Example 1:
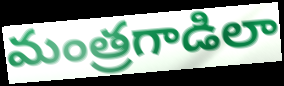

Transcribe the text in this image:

మంత్రగాడిలా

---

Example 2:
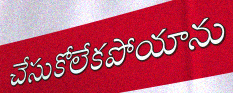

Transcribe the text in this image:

చేసుకోలేకపోయాను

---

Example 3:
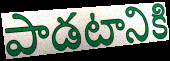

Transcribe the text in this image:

పాడటానికి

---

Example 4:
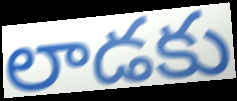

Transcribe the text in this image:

లాడకు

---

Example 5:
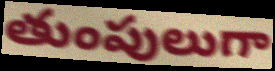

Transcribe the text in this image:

తుంపులుగా